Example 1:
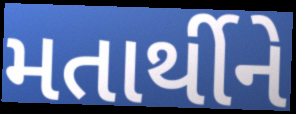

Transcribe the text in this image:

મતાર્થીને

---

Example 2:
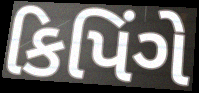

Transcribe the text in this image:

કિપિંગે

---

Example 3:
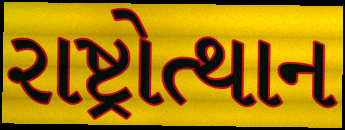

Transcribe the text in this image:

રાષ્ટ્રોત્થાન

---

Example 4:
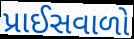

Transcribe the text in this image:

પ્રાઈસવાળો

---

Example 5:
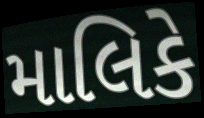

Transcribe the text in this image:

માલિકે